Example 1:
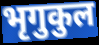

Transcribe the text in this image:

भृगुकुल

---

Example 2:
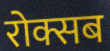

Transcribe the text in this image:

रोक्सब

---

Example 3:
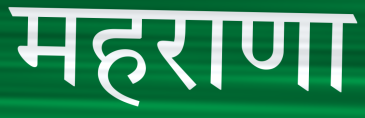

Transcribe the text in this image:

महराणा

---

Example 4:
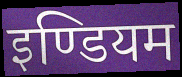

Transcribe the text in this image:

इण्डियम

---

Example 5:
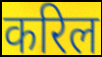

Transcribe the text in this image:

करिल